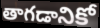
తాగడానికో